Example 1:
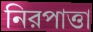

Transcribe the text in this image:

নিরপাত্তা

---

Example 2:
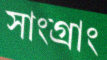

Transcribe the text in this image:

সাংগ্রাং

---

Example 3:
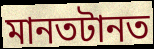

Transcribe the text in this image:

মানতটানত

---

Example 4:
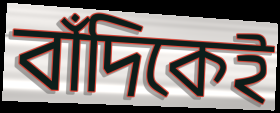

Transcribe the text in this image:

বাঁদিকেই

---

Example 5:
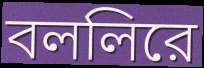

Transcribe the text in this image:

বললিরে